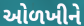
ઓળખીને